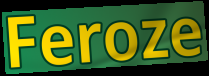
Feroze